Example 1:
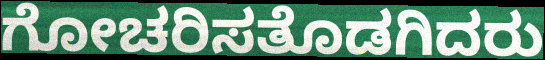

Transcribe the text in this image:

ಗೋಚರಿಸತೊಡಗಿದರು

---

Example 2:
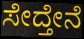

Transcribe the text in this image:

ಸೇದ್ತೇನೆ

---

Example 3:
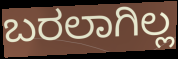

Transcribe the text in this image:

ಬರಲಾಗಿಲ್ಲ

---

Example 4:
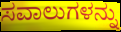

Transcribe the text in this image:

ಸವಾಲುಗಳನ್ನು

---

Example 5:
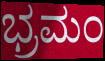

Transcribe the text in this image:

ಭ್ರಮಂ